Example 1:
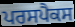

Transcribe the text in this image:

ਪਰਸਪੈਕਸ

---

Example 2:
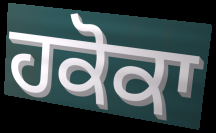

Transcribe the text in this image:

ਹਕੋਕਾ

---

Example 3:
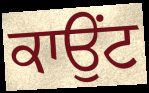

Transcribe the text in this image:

ਕਾਉਂਟ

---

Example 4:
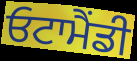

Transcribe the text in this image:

ਓਟਾਮੈਂਡੀ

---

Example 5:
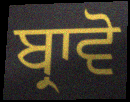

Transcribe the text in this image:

ਬ੍ਰਾਵੋ